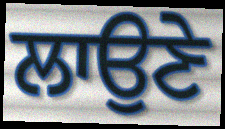
ਲਾਉਣੇ